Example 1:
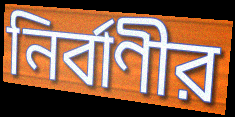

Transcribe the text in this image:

নির্বাণীর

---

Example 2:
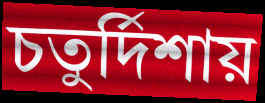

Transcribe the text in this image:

চতুর্দিশায়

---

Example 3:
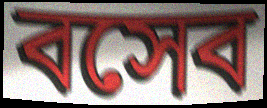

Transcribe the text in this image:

বসেব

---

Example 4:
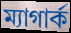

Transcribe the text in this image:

ম্যাগার্ক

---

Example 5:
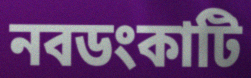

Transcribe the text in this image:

নবডংকাটি